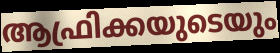
ആഫ്രിക്കയുടെയും